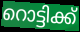
റൊട്ടിക്ക്